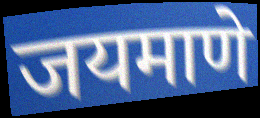
जयमाणे